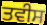
ਤਵੀਸ